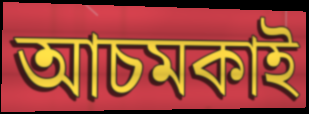
আচমকাই